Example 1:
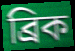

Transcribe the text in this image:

ব্রিক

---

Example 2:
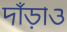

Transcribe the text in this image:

দাঁড়াও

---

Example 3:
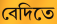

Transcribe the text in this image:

বেদিতে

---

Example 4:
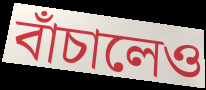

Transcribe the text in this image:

বাঁচালেও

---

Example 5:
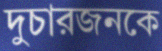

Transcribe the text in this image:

দুচারজনকে